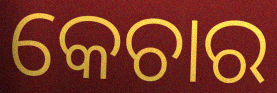
କେଚାର